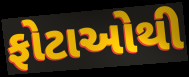
ફોટાઓથી